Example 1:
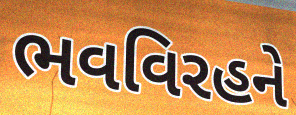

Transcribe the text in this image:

ભવવિરહને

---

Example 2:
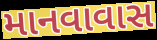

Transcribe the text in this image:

માનવાવાસ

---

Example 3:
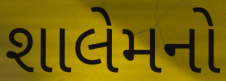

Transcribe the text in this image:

શાલેમનો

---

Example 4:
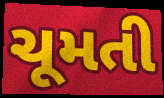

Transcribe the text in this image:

ચૂમતી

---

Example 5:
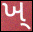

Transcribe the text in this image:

ખ્